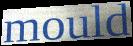
mould